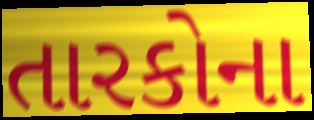
તારકોના